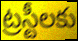
ట్రస్టీలకు